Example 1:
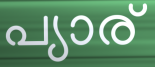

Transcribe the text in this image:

പ്യാര്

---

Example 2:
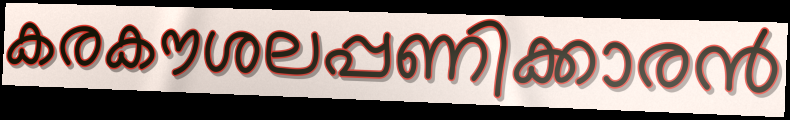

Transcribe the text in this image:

കരകൗശലപ്പണിക്കാരൻ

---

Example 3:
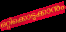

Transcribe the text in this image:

ഒറ്റിക്കൊടുക്കാനും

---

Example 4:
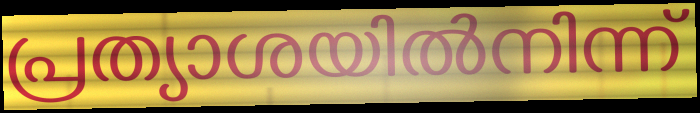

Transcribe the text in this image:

പ്രത്യാശയിൽനിന്ന്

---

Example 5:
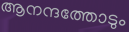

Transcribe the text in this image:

ആനന്ദത്തോടും